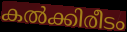
കൽക്കിരീടം